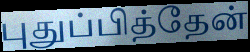
புதுப்பித்தேன்